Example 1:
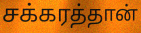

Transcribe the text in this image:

சக்கரத்தான்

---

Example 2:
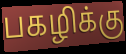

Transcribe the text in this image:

பகழிக்கு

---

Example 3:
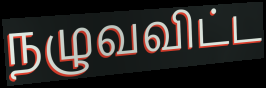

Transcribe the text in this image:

நழுவவிட்ட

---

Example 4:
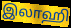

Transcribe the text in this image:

இலாஹி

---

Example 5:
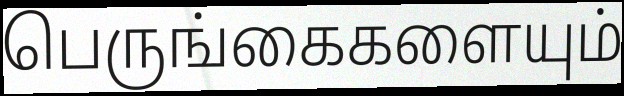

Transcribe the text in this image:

பெருங்கைகளையும்